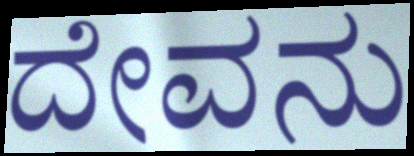
ದೇವನು